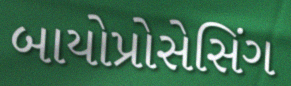
બાયોપ્રોસેસિંગ